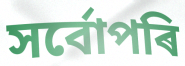
সৰ্বোপৰি